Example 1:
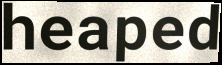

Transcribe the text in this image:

heaped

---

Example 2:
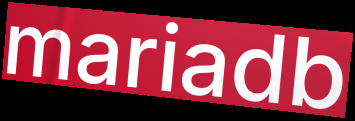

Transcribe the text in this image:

mariadb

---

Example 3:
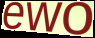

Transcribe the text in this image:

ewo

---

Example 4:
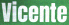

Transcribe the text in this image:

Vicente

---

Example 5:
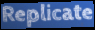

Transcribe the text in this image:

Replicate